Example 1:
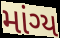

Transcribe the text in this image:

માંગ્ય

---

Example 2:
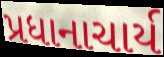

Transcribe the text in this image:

પ્રધાનાચાર્ય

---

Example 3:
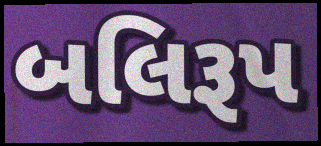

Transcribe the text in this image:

બલિરૂપ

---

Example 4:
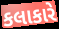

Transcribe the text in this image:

કલાકારે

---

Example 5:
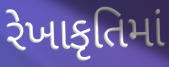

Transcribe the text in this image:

રેખાકૃતિમાં